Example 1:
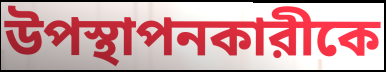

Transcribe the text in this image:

উপস্থাপনকারীকে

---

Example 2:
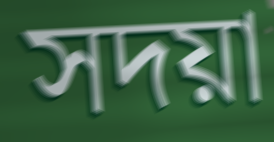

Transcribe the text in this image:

সদয়া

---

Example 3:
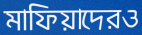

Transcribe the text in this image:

মাফিয়াদেরও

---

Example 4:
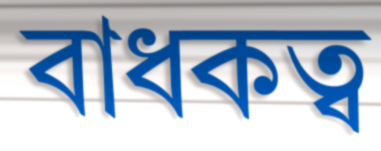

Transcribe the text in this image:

বাধকত্ব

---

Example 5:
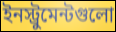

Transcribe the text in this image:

ইনস্ট্রুমেন্টগুলো